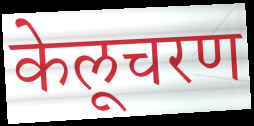
केलूचरण